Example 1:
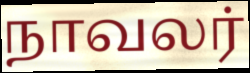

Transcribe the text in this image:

நாவலர்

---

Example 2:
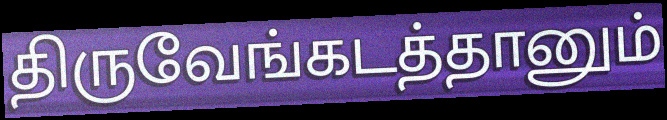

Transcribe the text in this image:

திருவேங்கடத்தானும்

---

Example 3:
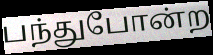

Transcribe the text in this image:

பந்துபோன்ற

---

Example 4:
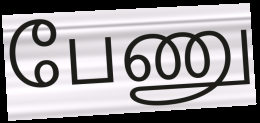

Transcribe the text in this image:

பேணு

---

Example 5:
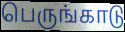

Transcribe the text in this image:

பெருங்காடு